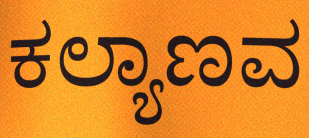
ಕಲ್ಯಾಣವ